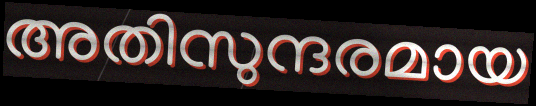
അതിസുന്ദരമായ